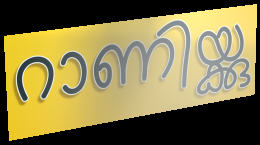
റാണിയ്ക്കു